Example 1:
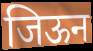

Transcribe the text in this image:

जिऊन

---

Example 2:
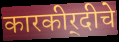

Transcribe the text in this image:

कारकीर्दीचे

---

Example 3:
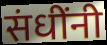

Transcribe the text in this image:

संधींनी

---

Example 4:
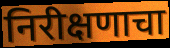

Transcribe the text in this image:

निरीक्षणाचा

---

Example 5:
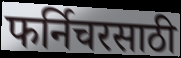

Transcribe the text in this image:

फर्निचरसाठी